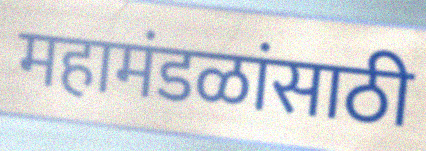
महामंडळांसाठी